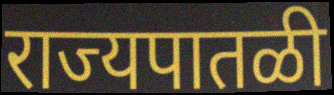
राज्यपातळी